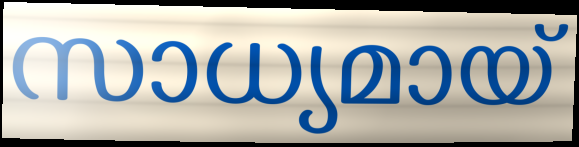
സാധ്യമായ്